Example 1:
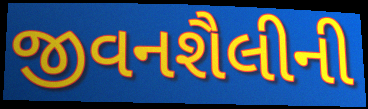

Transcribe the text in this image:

જીવનશૈલીની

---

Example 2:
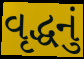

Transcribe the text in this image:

વૃદ્ધનું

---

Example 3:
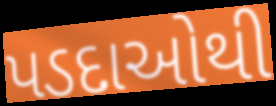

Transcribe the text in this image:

પડદાઓથી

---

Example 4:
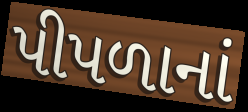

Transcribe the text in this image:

પીપળાનાં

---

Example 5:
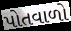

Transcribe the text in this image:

પોતવાળો